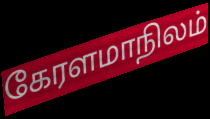
கேரளமாநிலம்